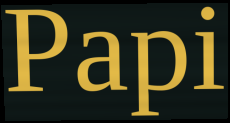
Papi